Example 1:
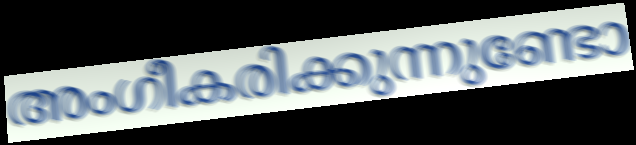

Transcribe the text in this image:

അംഗീകരിക്കുന്നുണ്ടോ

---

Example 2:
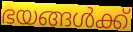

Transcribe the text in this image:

ഭയങ്ങൾക്ക്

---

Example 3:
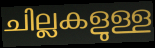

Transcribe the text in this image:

ചില്ലകളുള്ള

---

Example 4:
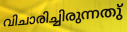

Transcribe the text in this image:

വിചാരിച്ചിരുന്നതു്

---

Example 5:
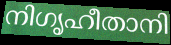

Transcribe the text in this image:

നിഗൃഹീതാനി